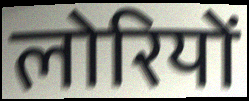
लोरियों